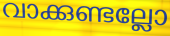
വാക്കുണ്ടല്ലോ